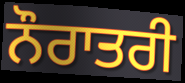
ਨੌਰਾਤਰੀ